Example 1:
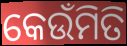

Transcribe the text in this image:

କେଉଁମିତି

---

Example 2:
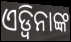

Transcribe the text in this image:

ଏଡ୍ୱିନାଙ୍କ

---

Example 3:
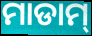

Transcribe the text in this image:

ମାଡାମ୍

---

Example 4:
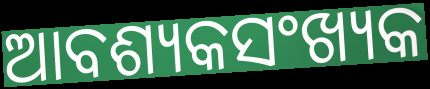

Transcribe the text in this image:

ଆବଶ୍ୟକସଂଖ୍ୟକ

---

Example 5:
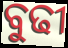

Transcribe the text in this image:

ବୁଢୀ